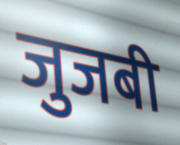
जुजबी